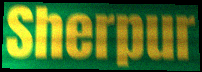
Sherpur